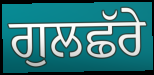
ਗੁਲਛੱਰੇ